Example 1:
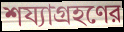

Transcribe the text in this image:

শয্যাগ্রহণের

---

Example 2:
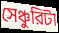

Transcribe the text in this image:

সেঞ্চুরিটা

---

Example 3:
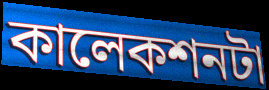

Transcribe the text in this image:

কালেকশনটা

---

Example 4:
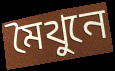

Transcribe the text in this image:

মৈথুনে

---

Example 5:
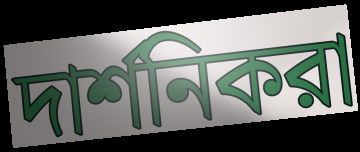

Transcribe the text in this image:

দার্শনিকরা